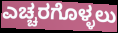
ಎಚ್ಚರಗೊಳ್ಳಲು